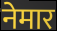
नेमार